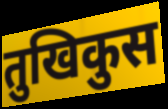
तुखिकुस